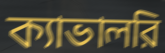
ক্যাভালরি